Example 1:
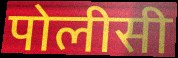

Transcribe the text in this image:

पोलीसी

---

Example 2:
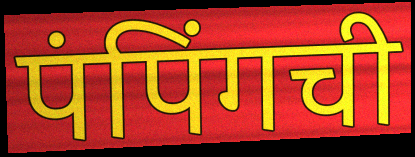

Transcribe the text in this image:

पंपिंगची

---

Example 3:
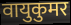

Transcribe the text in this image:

वायुकुमर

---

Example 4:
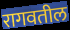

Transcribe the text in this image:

रागवतील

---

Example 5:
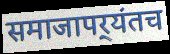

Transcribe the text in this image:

समाजापर्यंतच